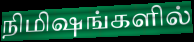
நிமிஷங்களில்